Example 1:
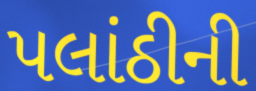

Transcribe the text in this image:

પલાંઠીની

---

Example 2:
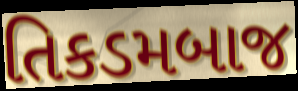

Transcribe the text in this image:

તિકડમબાજ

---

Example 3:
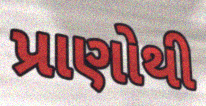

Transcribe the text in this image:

પ્રાણોથી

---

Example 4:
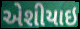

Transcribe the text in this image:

એશીયાઇ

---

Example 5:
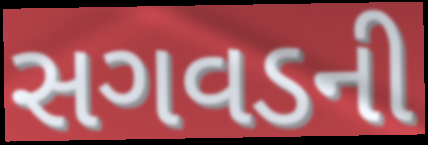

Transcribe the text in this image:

સગવડની